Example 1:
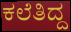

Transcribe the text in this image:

ಕಲೆತಿದ್ದ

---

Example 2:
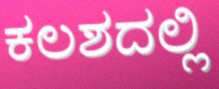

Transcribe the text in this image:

ಕಲಶದಲ್ಲಿ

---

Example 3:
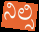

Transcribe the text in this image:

ನಿಲ್ಸಿ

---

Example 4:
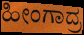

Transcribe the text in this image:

ಹೀಂಗಾದ್ರ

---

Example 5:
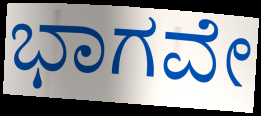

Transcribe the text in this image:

ಭಾಗವೇ